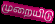
முறையிடு